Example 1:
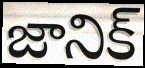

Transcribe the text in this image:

జానిక్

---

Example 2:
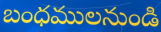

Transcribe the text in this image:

బంధములనుండి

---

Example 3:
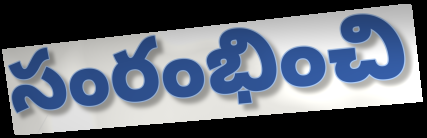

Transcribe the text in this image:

సంరంభించి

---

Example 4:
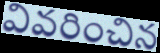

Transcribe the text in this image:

వివరించిన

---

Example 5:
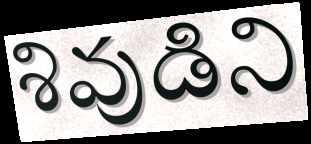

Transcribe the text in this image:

శివుడిని